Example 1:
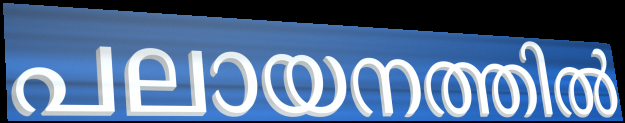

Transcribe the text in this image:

പലായനത്തിൽ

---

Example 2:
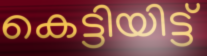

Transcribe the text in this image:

കെട്ടിയിട്ട്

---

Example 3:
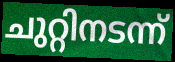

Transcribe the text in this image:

ചുറ്റിനടന്ന്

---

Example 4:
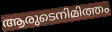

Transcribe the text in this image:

ആരുടെനിമിത്തം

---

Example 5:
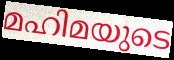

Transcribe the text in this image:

മഹിമയുടെ